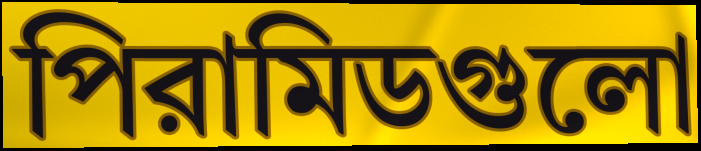
পিরামিডগুলো